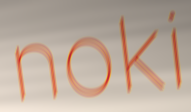
noki